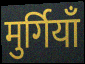
मुर्गियाँ